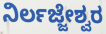
ನಿರ್ಲಜ್ಜೇಶ್ವರ